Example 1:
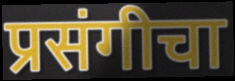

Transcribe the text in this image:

प्रसंगीचा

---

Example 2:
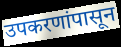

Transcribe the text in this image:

उपकरणांपासून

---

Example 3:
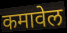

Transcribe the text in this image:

कमावेल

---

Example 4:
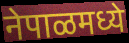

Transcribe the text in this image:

नेपाळमध्ये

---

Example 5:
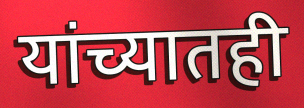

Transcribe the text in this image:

यांच्यातही